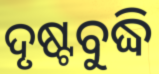
ଦୃଷ୍ଟବୁଦ୍ଧି